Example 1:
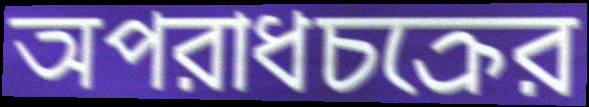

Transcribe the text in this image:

অপরাধচক্রের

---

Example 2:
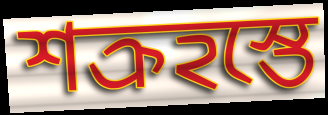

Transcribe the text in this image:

শক্রহস্তে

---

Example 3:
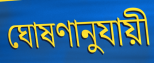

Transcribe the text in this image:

ঘোষণানুযায়ী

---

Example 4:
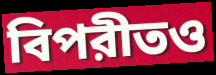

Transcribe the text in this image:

বিপরীতও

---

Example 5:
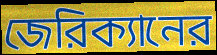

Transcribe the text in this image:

জেরিক্যানের